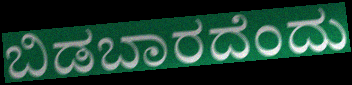
ಬಿಡಬಾರದೆಂದು